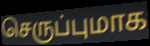
செருப்புமாக